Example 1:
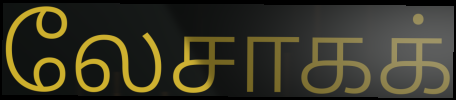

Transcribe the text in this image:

லேசாகக்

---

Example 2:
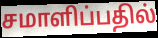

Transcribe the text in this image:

சமாளிப்பதில்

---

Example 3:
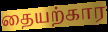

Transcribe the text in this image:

தையற்கார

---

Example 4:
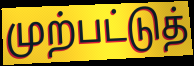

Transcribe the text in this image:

முற்பட்டுத்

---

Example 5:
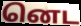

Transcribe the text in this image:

னெட